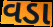
વડા